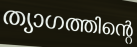
ത്യാഗത്തിന്റെ